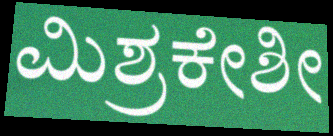
ಮಿಶ್ರಕೇಶೀ